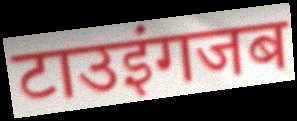
टाउइंगजब